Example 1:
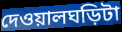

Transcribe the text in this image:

দেওয়ালঘড়িটা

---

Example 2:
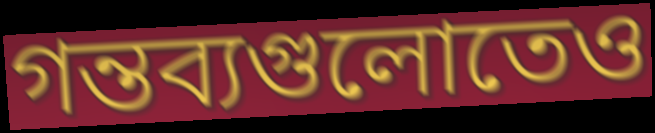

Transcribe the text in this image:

গন্তব্যগুলোতেও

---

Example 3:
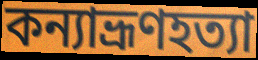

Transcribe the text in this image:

কন্যাভ্রূণহত্যা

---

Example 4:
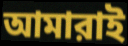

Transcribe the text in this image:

আমারাই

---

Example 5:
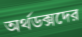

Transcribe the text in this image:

অর্থডক্সদের